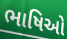
ભાષિઓ